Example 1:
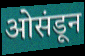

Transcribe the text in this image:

ओसंडून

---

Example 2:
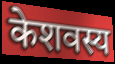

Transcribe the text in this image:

केशवस्य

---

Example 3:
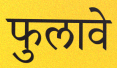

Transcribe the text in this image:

फुलावे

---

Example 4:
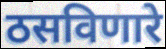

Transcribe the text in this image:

ठसविणारे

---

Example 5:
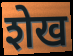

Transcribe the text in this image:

शेख